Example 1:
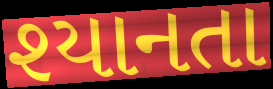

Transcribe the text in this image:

શ્યાનતા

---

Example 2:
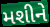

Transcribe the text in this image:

મશીને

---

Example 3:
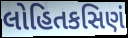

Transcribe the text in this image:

લોહિતકસિણં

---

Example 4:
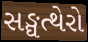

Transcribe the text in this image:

સઙ્ઘત્થેરો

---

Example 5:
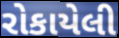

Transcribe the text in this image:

રોકાયેલી